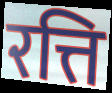
रत्ति